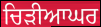
ਚਿੜੀਆਘਰ